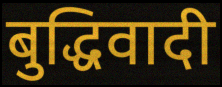
बुद्धिवादी